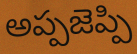
అప్పజెప్పి